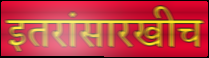
इतरांसारखीच